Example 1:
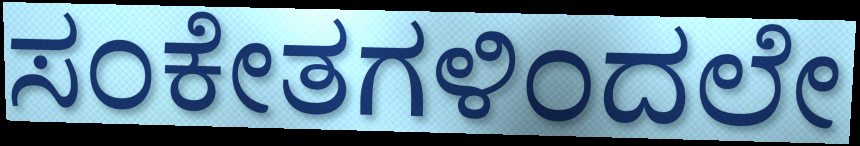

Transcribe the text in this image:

ಸಂಕೇತಗಳಿಂದಲೇ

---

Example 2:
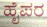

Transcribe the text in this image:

ಹೈಪರ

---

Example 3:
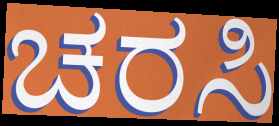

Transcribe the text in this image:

ಚರಸಿ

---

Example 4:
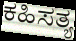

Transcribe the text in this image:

ಕಹಿಸತ್ಯ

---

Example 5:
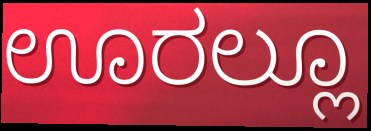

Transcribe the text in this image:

ಊರಲ್ಲೂ